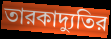
তারকাদ্যুতির